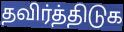
தவிர்த்திடுக